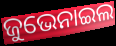
ଜୁଭେନାଇଲ